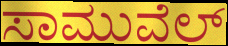
ಸಾಮುವೆಲ್